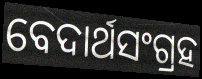
ବେଦାର୍ଥସଂଗ୍ରହ